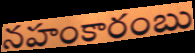
నహంకారంబు